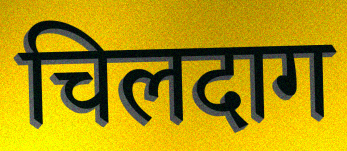
चिलदाग